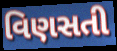
વિણસતી